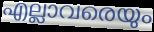
എല്ലാവരെയും